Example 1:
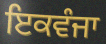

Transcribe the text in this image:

ਇਕਵੰਜਾ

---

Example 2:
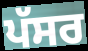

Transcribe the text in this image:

ਪੱਸਰ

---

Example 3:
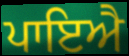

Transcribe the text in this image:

ਪਾਇਐ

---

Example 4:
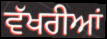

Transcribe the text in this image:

ਵੱਖਰੀਆਂ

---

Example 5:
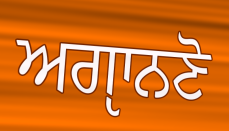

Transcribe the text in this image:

ਅਗੵਾਨਣੋ